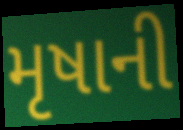
મૃષાની